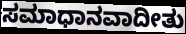
ಸಮಾಧಾನವಾದೀತು